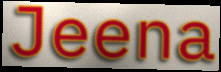
Jeena